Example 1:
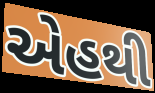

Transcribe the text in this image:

એહથી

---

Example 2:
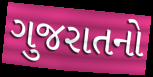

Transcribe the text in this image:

ગુજરાતનો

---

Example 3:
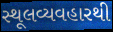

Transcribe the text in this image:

સ્થૂલવ્યવહારથી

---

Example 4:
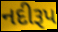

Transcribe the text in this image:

નદીરૂપ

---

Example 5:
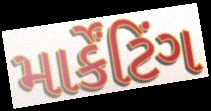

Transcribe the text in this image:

માર્કેંટિંગ